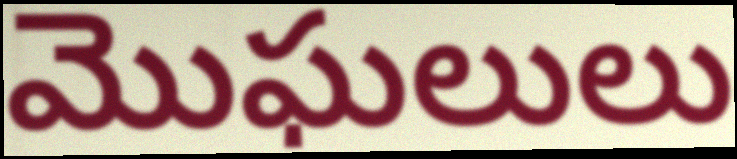
మొఘలులు